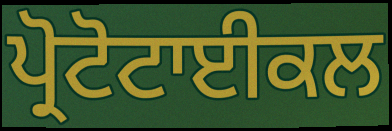
ਪ੍ਰੋਟੋਟਾਈਕਲ